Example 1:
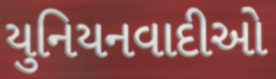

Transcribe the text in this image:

યુનિયનવાદીઓ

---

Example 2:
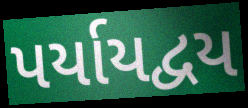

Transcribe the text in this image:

પર્યાયદ્વય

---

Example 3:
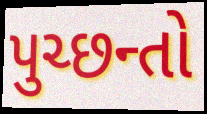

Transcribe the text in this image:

પુચ્છન્તો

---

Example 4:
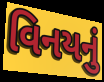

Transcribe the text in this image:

વિનયનું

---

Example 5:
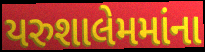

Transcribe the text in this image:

યરુશાલેમમાંના